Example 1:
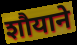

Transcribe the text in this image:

शौयाने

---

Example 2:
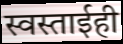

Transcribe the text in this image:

स्वस्ताईही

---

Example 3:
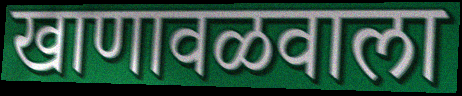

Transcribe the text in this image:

खाणावळवाला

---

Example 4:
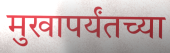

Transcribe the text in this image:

मुखापर्यंतच्या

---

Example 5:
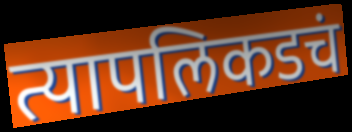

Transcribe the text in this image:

त्यापलिकडचं